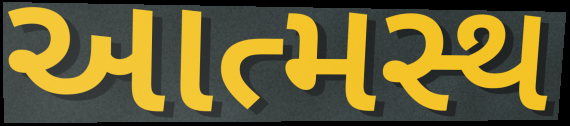
આત્મસ્થ